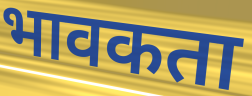
भावकता